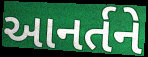
આનર્તને